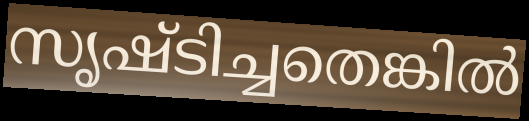
സൃഷ്ടിച്ചതെങ്കിൽ